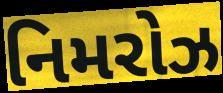
નિમરોઝ